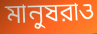
মানুষরাও